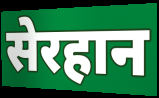
सेरहान